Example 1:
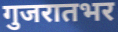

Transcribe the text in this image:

गुजरातभर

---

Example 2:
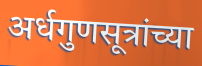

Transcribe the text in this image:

अर्धगुणसूत्रांच्या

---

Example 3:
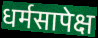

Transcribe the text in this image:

धर्मसापेक्ष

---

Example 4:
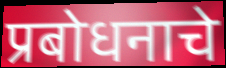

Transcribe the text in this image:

प्रबोधनाचे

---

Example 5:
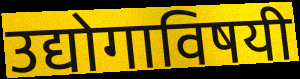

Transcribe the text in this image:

उद्योगाविषयी